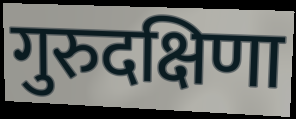
गुरुदक्षिणा